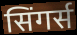
सिंगर्स